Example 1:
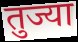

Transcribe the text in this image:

तुज्या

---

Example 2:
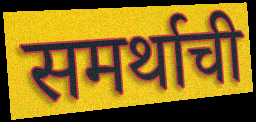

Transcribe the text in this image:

समर्थाची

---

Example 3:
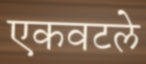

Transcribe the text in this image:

एकवटले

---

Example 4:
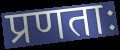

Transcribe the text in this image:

प्रणताः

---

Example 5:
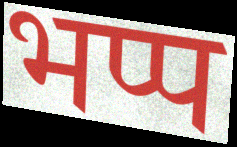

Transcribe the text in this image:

भप्प